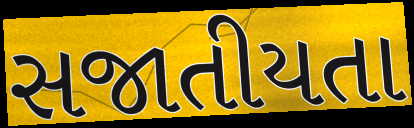
સજાતીયતા